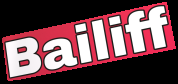
Bailiff